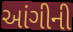
આંગીની